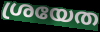
ശ്രയേത